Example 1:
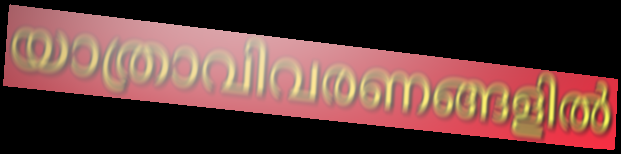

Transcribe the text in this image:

യാത്രാവിവരണങ്ങളിൽ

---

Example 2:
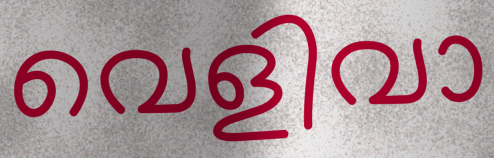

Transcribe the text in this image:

വെളിവാ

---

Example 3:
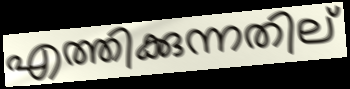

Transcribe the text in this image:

എത്തിക്കുന്നതില്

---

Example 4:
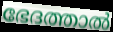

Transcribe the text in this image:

ഭേദത്താൽ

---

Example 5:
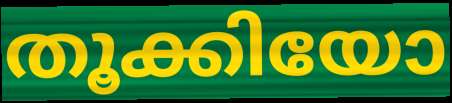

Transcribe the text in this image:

തൂക്കിയോ